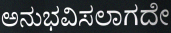
ಅನುಭವಿಸಲಾಗದೇ